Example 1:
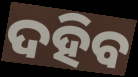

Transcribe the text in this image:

ଦହିବ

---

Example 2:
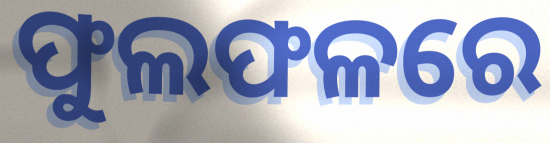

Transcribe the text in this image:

ଫୁଲଫଳରେ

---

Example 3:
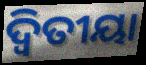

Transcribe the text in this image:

ଦ୍ୱିତୀୟା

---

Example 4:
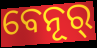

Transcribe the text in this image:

ବେନୂର୍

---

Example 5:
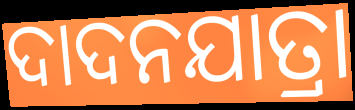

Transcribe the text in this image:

ଦାଦନଯାତ୍ରା